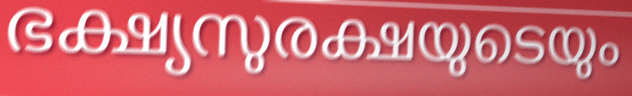
ഭക്ഷ്യസുരക്ഷയുടെയും